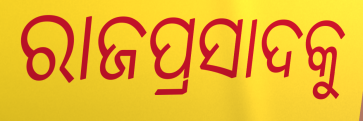
ରାଜପ୍ରସାଦକୁ